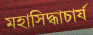
মহাসিদ্ধাচার্য